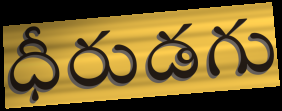
ధీరుడగు